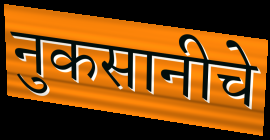
नुकसानीचे